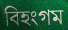
বিহংগম